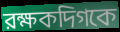
রক্ষকদিগকে